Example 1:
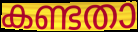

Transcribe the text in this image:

കണ്ടതാ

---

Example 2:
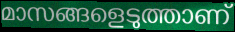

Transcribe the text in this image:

മാസങ്ങളെടുത്താണ്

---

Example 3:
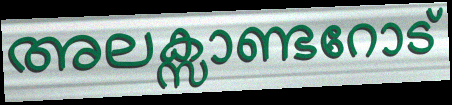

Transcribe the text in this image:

അലക്സാണ്ടറോട്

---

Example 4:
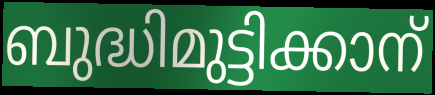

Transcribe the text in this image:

ബുദ്ധിമുട്ടിക്കാന്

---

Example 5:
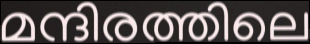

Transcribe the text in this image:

മന്ദിരത്തിലെ